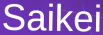
Saikei